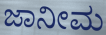
ಜಾನೀಮ